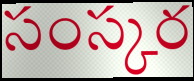
సంస్కర